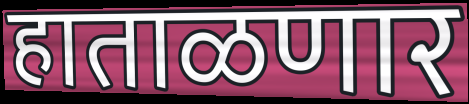
हाताळणार